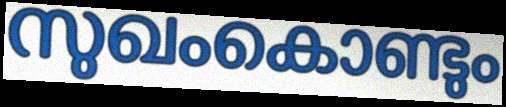
സുഖംകൊണ്ടും